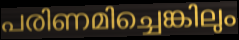
പരിണമിച്ചെങ്കിലും